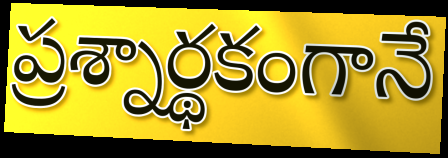
ప్రశ్నార్థకంగానే